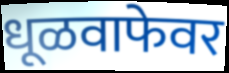
धूळवाफेवर